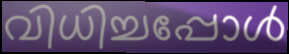
വിധിച്ചപ്പോൾ